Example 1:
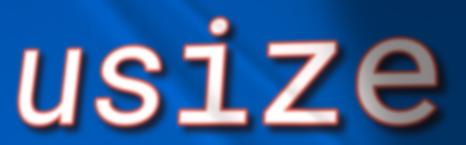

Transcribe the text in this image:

usize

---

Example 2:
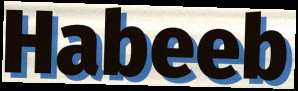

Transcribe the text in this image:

Habeeb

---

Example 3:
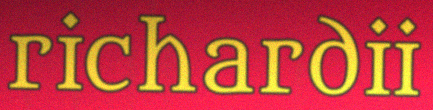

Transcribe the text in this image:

richardii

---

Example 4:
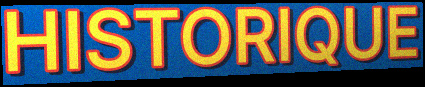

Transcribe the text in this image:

HISTORIQUE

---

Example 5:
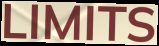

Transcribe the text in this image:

LIMITS